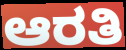
ಆರತಿ